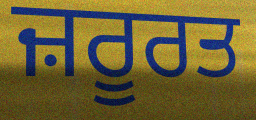
ਜ਼ਰੂਰਤ